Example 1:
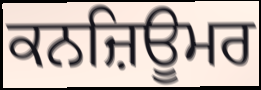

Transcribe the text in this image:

ਕਨਜ਼ਿਊਮਰ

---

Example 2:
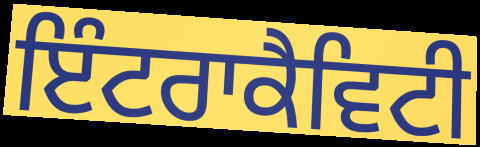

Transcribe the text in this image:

ਇੰਟਰਾਕੈਵਿਟੀ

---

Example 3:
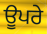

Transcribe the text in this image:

ਊਪਰੇ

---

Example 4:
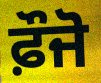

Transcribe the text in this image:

ਫ਼ੌਜੋ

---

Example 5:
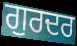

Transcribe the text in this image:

ਗੁਰਦਰ